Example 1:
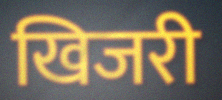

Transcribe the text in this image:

खिजरी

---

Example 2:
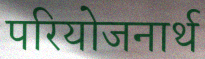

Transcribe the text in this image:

परियोजनार्थ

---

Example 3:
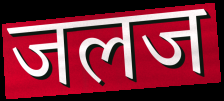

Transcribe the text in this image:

जलज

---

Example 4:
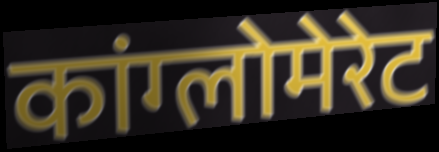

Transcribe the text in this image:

कांग्लोमेरेट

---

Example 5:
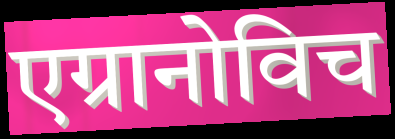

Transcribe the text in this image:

एग्रानोविच